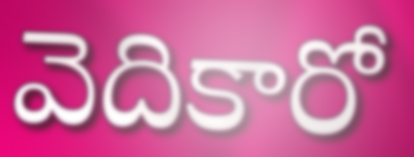
వెదికారో